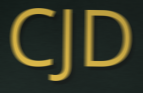
CJD